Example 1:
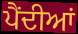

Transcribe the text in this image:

ਪੈਂਦੀਆਂ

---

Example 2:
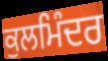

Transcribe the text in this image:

ਕੁਲਮਿੰਦਰ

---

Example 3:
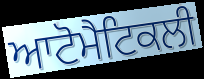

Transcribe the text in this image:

ਆਟੋਮੈਟਿਕਲੀ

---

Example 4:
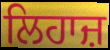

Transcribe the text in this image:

ਲਿਹਾਜ਼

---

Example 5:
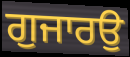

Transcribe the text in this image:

ਗੁਜਾਰਉ